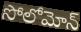
సోలోమోన్